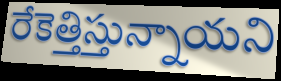
రేకెత్తిస్తున్నాయని